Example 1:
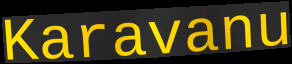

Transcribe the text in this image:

Karavanu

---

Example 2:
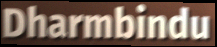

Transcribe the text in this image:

Dharmbindu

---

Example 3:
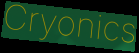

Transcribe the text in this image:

Cryonics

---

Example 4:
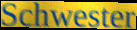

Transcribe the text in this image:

Schwester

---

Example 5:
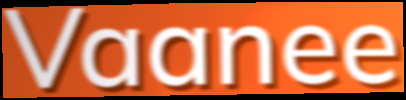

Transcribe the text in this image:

Vaanee